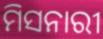
ମିସନାରୀ